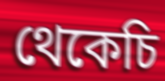
থেকেচি